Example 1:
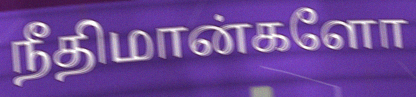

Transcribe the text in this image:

நீதிமான்களோ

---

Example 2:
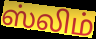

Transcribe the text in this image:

ஸ்லிம்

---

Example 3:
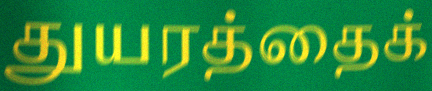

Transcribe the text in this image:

துயரத்தைக்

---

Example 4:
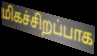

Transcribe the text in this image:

மிகச்சிறப்பாக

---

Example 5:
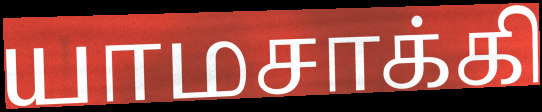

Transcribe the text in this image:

யாமசாக்கி